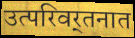
उत्परिवर्तनात